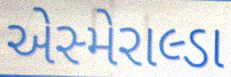
એસ્મેરાલ્ડા